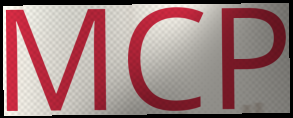
MCP